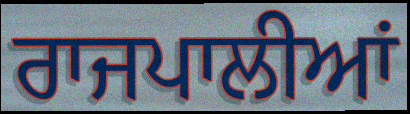
ਰਾਜਪਾਲੀਆਂ